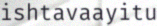
ishtavaayitu